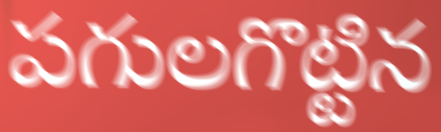
పగులగొట్టిన